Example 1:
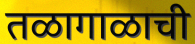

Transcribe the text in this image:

तळागाळाची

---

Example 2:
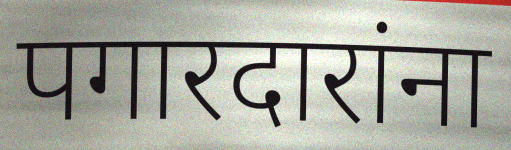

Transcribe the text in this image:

पगारदारांना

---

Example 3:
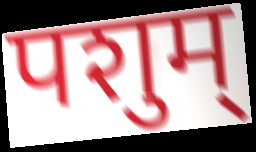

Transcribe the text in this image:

पशुम्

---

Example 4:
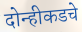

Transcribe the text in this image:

दोन्हीकडचे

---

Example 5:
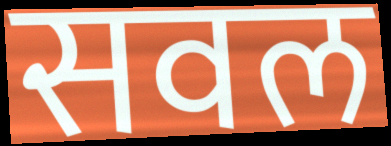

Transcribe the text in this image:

सवल